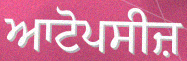
ਆਟੋਪਸੀਜ਼